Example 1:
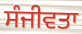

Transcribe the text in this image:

ਸੰਜੀਵਤਾ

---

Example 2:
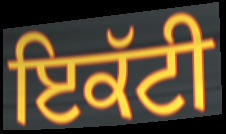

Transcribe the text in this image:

ਇਕੱਟੀ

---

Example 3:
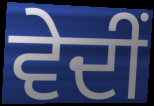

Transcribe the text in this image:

ਵੇਦੀਂ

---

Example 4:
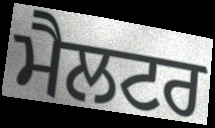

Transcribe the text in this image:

ਮੈਲਟਰ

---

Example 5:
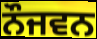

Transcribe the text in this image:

ਨੌਜਵਨ